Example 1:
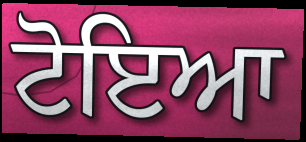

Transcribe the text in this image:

ਟੋਇਆ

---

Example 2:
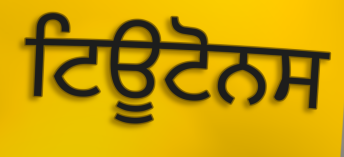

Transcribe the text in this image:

ਟਿਊਟੋਨਸ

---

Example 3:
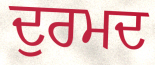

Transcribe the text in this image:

ਦੁਰਮਦ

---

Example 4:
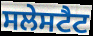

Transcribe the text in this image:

ਸਲੇਸਟੈਟ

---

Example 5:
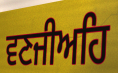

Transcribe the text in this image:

ਵਣਜੀਅਹਿ